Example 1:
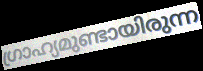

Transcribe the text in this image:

ഗ്രാഹ്യമുണ്ടായിരുന്ന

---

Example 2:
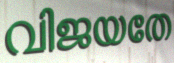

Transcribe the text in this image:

വിജയതേ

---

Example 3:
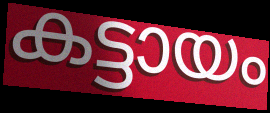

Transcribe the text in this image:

കട്ടായം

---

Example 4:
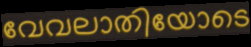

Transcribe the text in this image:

വേവലാതിയോടെ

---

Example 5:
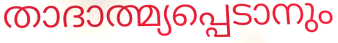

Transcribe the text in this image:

താദാത്മ്യപ്പെടാനും